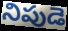
నిపుడె